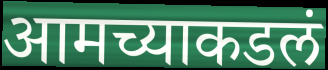
आमच्याकडलं